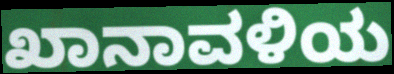
ಖಾನಾವಳಿಯ